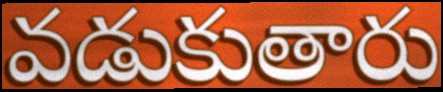
వడుకుతారు